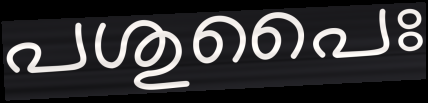
പശുപൈഃ